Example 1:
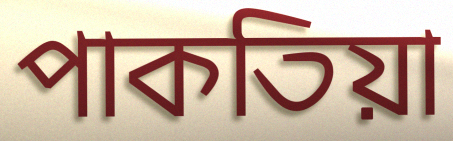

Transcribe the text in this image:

পাকতিয়া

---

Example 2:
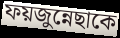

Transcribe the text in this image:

ফয়জুন্নেছাকে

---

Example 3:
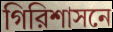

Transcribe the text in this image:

গিরিশাসনে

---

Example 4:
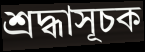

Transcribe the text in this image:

শ্রদ্ধাসূচক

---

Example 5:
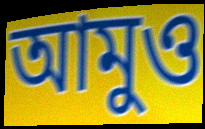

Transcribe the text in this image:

আমুও